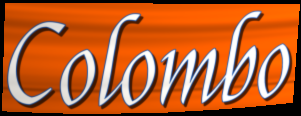
Colombo